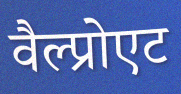
वैल्प्रोएट